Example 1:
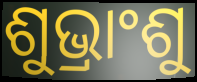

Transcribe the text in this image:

ଶୁଭ୍ରାଂଶୁ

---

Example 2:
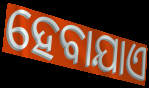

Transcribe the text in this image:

ହେବାଯାଏ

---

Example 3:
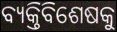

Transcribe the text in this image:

ବ୍ୟକ୍ତିବିଶେଷକୁ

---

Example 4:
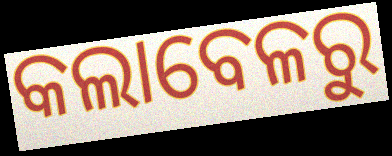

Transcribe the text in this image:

କଲାବେଳରୁ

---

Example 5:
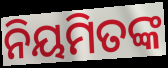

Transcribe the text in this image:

ନିୟମିତଙ୍କ